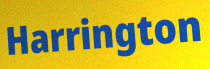
Harrington